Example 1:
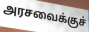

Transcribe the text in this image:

அரசவைக்குச்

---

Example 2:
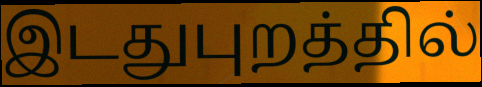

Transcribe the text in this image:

இடதுபுறத்தில்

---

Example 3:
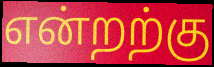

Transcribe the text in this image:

என்றற்கு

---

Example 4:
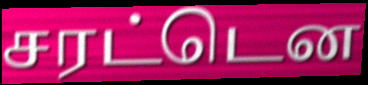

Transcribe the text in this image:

சரட்டென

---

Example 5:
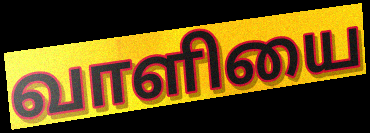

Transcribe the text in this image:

வாளியை